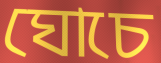
ঘোচে